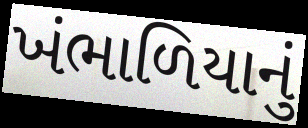
ખંભાળિયાનું